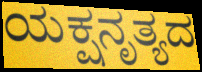
ಯಕ್ಷನೃತ್ಯದ